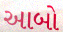
આબો